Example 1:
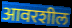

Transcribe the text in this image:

आवरशील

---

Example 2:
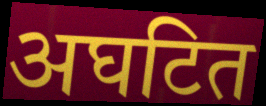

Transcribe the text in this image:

अघटित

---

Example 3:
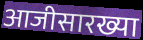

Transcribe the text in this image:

आजीसारख्या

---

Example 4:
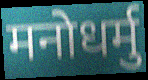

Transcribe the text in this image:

मनोधर्मु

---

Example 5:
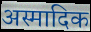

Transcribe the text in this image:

अस्मादिक